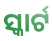
ସ୍କାର୍ଟ